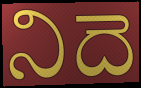
నిదె